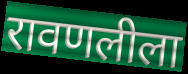
रावणलीला